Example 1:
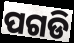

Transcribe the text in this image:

ପଗଡି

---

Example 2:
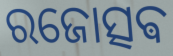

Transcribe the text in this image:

ରଜୋତ୍ସଵ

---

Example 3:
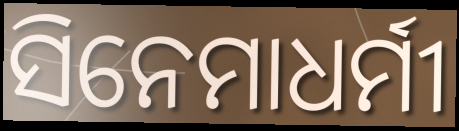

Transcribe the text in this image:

ସିନେମାଧର୍ମୀ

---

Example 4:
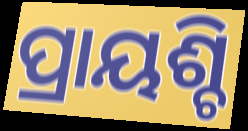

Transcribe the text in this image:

ପ୍ରାୟଶ୍ଚି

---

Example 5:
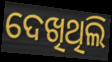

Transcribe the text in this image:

ଦେଖିଥିଲି